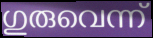
ഗുരുവെന്ന്